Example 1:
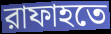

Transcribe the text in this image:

রাফাহতে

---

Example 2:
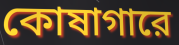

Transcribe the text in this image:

কোষাগারে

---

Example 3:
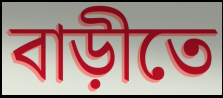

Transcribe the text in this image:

বাড়ীতে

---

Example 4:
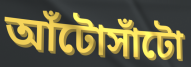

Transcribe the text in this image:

আঁটোসাঁটো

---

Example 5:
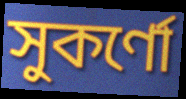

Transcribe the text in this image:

সুকর্ণো